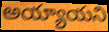
అయ్యాయని